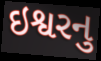
ઇશ્વરનુ